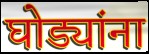
घोड्यांना